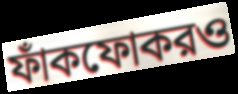
ফাঁকফোকরও